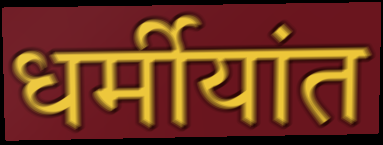
धर्मीयांत